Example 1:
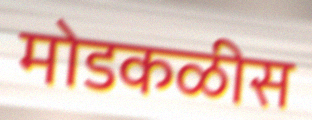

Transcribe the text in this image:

मोडकळीस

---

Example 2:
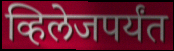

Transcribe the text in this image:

व्हिलेजपर्यंत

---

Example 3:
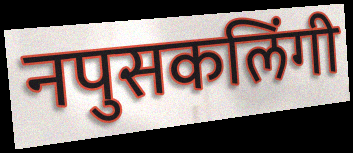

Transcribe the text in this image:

नपुसकलिंगी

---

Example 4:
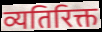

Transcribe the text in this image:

व्यतिरिक्त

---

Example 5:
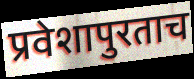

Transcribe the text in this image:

प्रवेशापुरताच